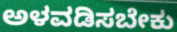
ಅಳವಡಿಸಬೇಕು